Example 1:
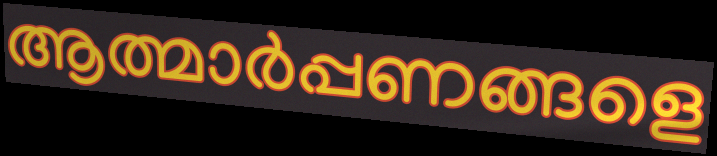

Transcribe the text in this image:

ആത്മാർപ്പണങ്ങളെ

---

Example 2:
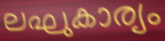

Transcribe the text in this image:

ലഘുകാര്യം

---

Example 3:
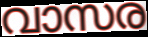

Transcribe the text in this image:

വാസര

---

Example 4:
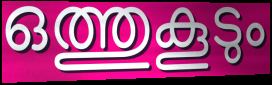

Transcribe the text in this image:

ഒത്തുകൂടും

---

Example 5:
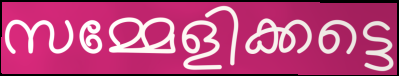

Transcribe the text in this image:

സമ്മേളിക്കട്ടെ